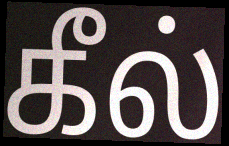
கீல்